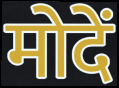
मोदें